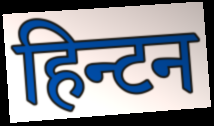
हिन्टन